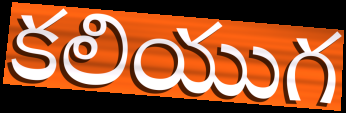
కలియుగ